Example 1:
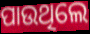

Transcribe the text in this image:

ପାଉଥିଲେ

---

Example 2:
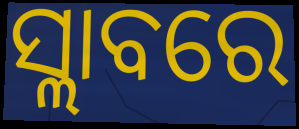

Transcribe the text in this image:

ସ୍ଲାବରେ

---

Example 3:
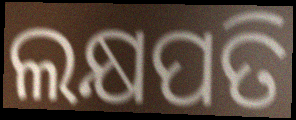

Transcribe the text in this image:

ଲକ୍ଷପତି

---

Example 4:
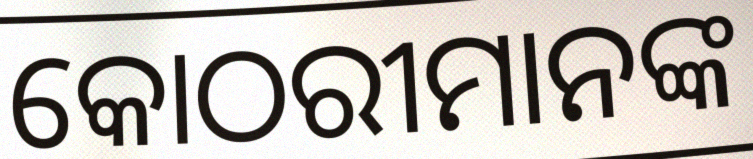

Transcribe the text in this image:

କୋଠରୀମାନଙ୍କ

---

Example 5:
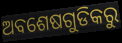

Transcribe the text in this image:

ଅବଶେଷଗୁଡିକରୁ